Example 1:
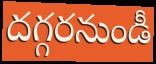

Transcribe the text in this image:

దగ్గరనుండీ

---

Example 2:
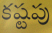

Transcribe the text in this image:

కష్టపు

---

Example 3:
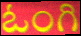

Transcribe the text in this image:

ఓంగి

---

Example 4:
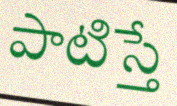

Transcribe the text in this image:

పాటిస్తే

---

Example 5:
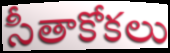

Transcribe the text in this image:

సీతాకోకలు